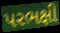
પરભક્ષી